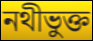
নথীভুক্ত